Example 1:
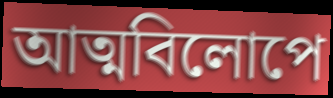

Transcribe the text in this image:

আত্মবিলোপে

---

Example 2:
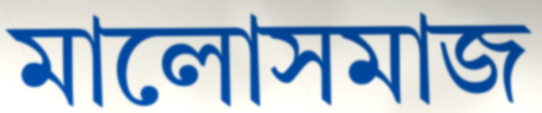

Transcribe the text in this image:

মালোসমাজ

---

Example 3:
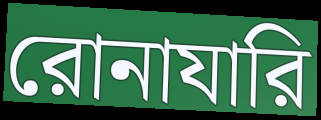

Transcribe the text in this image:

রোনাযারি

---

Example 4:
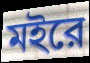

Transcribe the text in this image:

মইরে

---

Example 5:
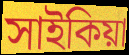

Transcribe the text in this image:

সাইকিয়া